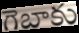
గెబాకు